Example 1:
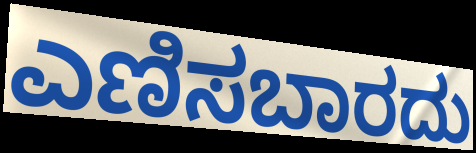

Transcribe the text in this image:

ಎಣಿಸಬಾರದು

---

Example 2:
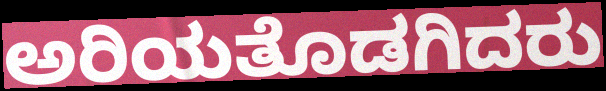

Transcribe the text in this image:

ಅರಿಯತೊಡಗಿದರು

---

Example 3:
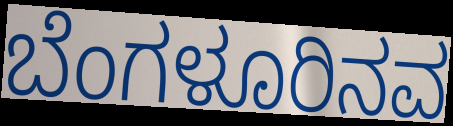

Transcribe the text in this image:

ಬೆಂಗಳೂರಿನವ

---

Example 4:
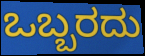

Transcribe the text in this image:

ಒಬ್ಬರದು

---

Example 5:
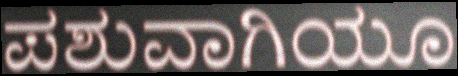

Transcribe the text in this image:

ಪಶುವಾಗಿಯೂ